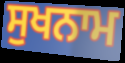
ਸੁਖਨਾਮ